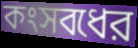
কংসবধের